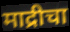
माद्रीचा